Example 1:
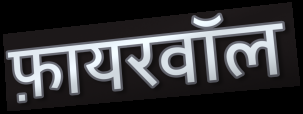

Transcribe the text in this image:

फ़ायरवॉल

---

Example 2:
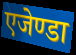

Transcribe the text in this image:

एजेण्डा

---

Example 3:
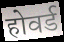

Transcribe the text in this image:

होवर्ड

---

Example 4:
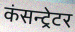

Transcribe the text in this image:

कंसन्ट्रेटर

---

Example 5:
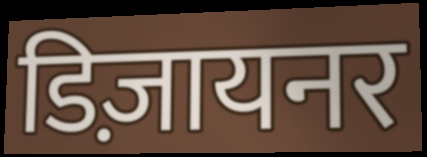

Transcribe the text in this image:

डिज़ायनर